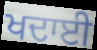
ਖਦਾਈ